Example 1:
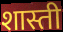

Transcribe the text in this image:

शास्ती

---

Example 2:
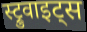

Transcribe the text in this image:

स्ट्रुवाइट्स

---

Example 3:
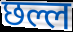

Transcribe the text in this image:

छल्ल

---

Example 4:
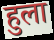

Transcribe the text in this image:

हुला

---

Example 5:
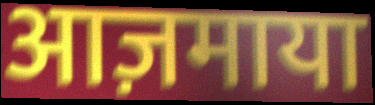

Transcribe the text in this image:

आज़माया